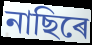
নাছিৰে